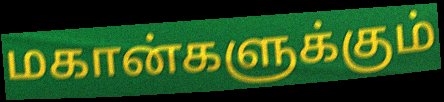
மகான்களுக்கும்